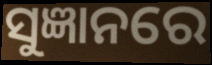
ସୁଜ୍ଞାନରେ